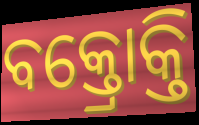
ବକ୍ତ୍ରୋକ୍ତି